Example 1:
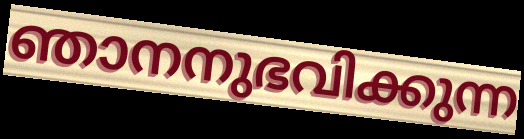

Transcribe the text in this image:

ഞാനനുഭവിക്കുന്ന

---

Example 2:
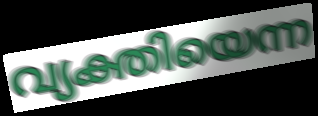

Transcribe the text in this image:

വ്യക്തിയെന്ന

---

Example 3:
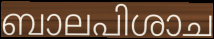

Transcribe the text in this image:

ബാലപിശാച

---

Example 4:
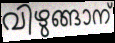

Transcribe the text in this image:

വിഴുങ്ങാന്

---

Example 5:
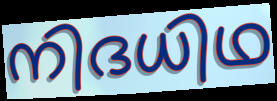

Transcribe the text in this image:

നിദധിഥ